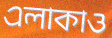
এলাকাও